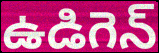
ఉడిగెన్